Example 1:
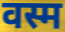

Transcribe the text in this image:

वस्म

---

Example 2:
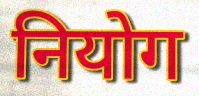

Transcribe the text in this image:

नियोग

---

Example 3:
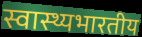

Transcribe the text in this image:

स्वास्थ्यभारतीय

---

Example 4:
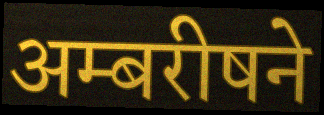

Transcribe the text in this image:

अम्बरीषने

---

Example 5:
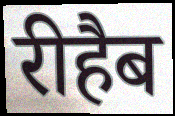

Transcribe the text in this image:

रीहैब